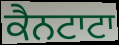
ਕੈਨਟਾਟਾ